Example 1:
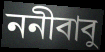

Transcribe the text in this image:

ননীবাবু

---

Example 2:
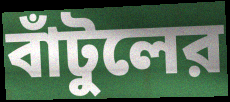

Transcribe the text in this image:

বাঁটুলের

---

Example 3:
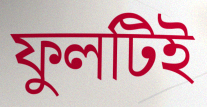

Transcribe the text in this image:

ফুলটিই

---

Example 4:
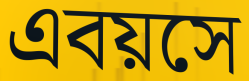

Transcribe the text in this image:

এবয়সে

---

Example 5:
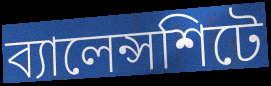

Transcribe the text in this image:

ব্যালেন্সশিটে